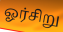
ஓர்சிறு